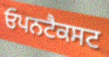
ਓਪਨਟੈਕਸਟ